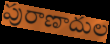
పురాణాదుల